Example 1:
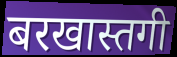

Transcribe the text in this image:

बरखास्तगी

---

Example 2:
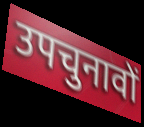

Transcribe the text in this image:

उपचुनावों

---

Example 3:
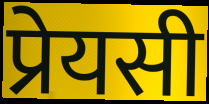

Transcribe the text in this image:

प्रेयसी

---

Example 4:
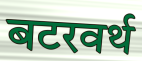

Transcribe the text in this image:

बटरवर्थ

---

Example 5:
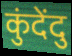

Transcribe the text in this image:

कुंदेंदु